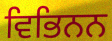
ਵਿਭਿਨਨ